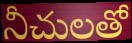
నీచులతో